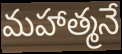
మహాత్మనే